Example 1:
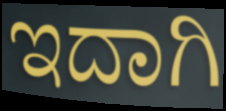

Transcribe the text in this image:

ಇದಾಗಿ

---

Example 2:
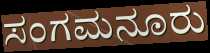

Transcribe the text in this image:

ಸಂಗಮನೂರು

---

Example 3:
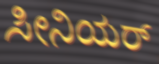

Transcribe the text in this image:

ಸೀನಿಯರ್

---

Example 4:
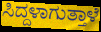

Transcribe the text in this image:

ಸಿದ್ದಳಾಗುತ್ತಾಳೆ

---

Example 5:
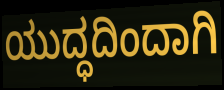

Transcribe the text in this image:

ಯುದ್ಧದಿಂದಾಗಿ